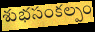
శుభసంకల్పం